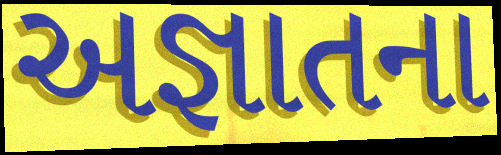
અજ્ઞાતના